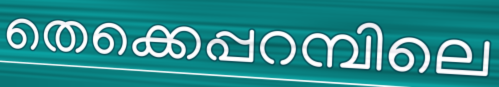
തെക്കെപ്പറമ്പിലെ